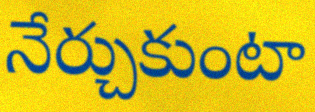
నేర్చుకుంటా